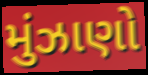
મુંઝાણો